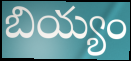
బియ్యం